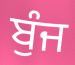
ਬੁੰਜ